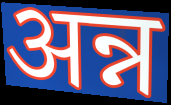
अन्न